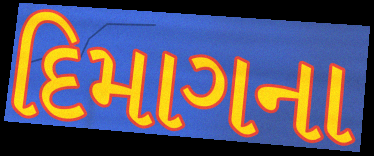
દિમાગના